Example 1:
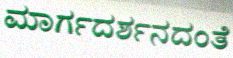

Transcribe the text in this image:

ಮಾರ್ಗದರ್ಶನದಂತೆ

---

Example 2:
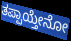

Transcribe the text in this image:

ತಪ್ಪಾಯ್ತೇನೋ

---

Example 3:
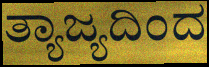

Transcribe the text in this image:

ತ್ಯಾಜ್ಯದಿಂದ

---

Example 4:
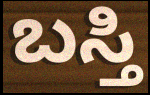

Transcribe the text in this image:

ಬಸ್ತಿ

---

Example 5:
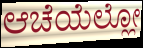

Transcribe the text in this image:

ಆಚೆಯೆಲ್ಲೋ